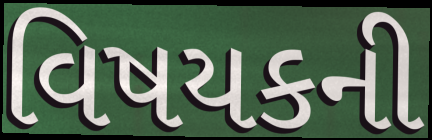
વિષયકની